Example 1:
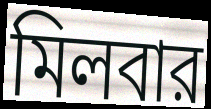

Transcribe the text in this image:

মিলবার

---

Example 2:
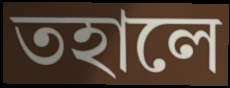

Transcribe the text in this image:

তহালে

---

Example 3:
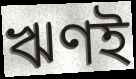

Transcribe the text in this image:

ঋণই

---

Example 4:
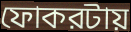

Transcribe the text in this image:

ফোকরটায়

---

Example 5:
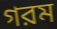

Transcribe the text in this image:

গরম